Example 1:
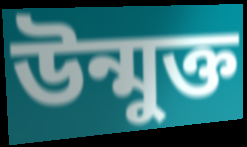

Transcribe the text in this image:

উন্মুক্ত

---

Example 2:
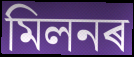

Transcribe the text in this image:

মিলনৰ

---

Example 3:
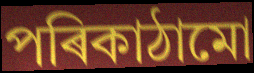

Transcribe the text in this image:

পৰিকাঠামো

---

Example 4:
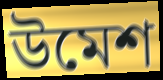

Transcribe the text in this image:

উমেশ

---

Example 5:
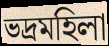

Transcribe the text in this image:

ভদ্ৰমহিলা